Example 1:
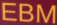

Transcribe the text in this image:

EBM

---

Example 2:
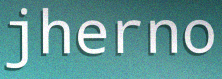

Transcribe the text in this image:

jherno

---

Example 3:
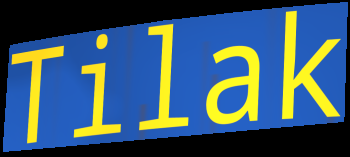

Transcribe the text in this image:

Tilak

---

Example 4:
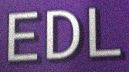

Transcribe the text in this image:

EDL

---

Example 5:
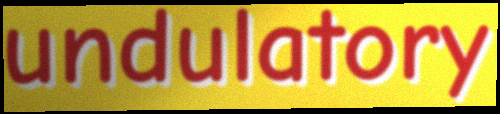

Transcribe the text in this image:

undulatory